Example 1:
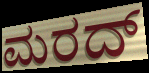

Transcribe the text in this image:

ಮರದ್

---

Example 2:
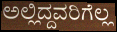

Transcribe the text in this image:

ಅಲ್ಲಿದ್ದವರಿಗೆಲ್ಲ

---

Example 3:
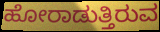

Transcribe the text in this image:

ಹೋರಾಡುತ್ತಿರುವ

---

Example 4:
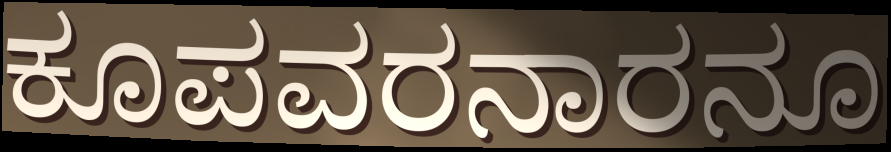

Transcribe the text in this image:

ಕೂಪವರನಾರನೂ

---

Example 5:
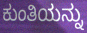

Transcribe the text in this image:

ಕುಂತಿಯನ್ನು